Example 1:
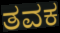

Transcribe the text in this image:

ತವಕ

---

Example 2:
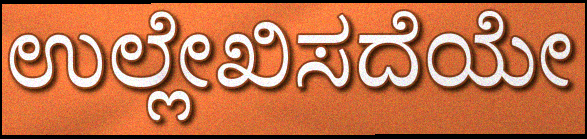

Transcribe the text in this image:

ಉಲ್ಲೇಖಿಸದೆಯೇ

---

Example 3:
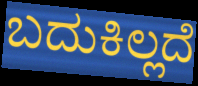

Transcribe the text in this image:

ಬದುಕಿಲ್ಲದೆ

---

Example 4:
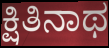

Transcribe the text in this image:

ಕ್ಷಿತಿನಾಥ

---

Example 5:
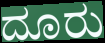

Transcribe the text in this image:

ದೂರು